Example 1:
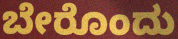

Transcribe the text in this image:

ಬೇರೊಂದು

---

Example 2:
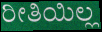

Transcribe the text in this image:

ರೀತಿಯಿಲ್ಲ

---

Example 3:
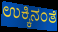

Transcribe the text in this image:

ಉಕ್ಕಿನಂತೆ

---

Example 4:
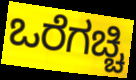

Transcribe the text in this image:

ಒರೆಗಚ್ಚಿ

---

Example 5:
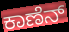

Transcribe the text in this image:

ಕಾಣೆನ್